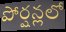
పోర్షన్లలో